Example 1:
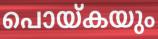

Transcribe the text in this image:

പൊയ്കയും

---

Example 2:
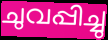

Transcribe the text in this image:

ചുവപ്പിച്ചു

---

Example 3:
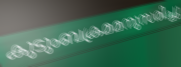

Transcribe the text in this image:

കുടുംബക്രമമനുസരിച്ചു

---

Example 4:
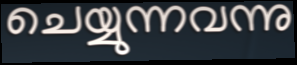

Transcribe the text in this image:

ചെയ്യുന്നവന്നു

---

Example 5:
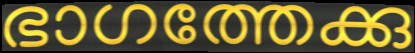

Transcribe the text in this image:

ഭാഗത്തേക്കു